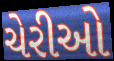
ચેરીઓ